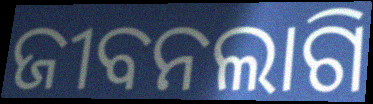
ଜୀବନଲାଗି